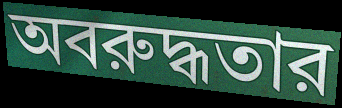
অবরুদ্ধতার